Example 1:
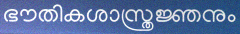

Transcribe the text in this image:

ഭൗതികശാസ്ത്രജ്ഞനും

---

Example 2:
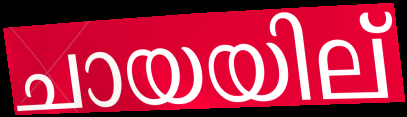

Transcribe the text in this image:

ചായയില്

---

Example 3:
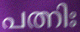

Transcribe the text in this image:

പത്നിഃ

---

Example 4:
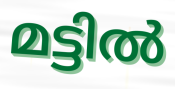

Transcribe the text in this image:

മട്ടിൽ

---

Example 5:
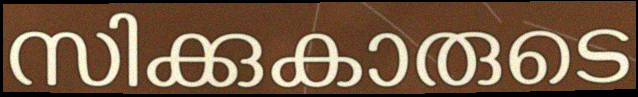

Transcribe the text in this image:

സിക്കുകാരുടെ